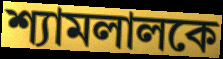
শ্যামলালকে